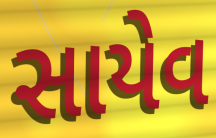
સાયેવ